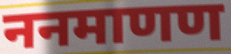
ननमाणण